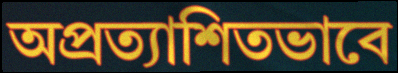
অপ্রত্যাশিতভাবে